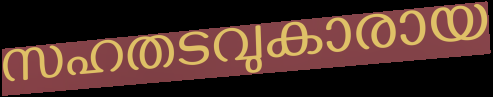
സഹതടവുകാരായ